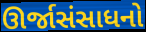
ઊર્જાસંસાધનો